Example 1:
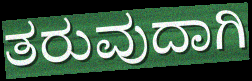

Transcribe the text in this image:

ತರುವುದಾಗಿ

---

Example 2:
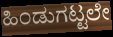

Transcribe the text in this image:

ಹಿಂಡುಗಟ್ಟಲೇ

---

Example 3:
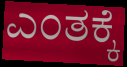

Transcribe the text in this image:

ಎಂತಕ್ಕೆ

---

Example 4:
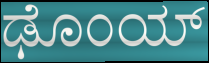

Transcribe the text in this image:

ಢೊಂಯ್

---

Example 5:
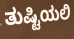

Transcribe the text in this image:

ತುಷ್ಟಿಯಲಿ